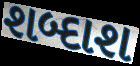
શબ્દાશ